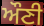
ਔਣੀ